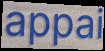
appai